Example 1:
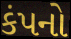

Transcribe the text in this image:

કંપનો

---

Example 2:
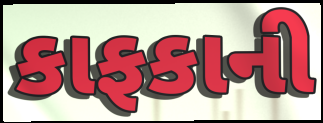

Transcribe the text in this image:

કાફકાની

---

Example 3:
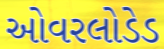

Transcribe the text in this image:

ઓવરલોડેડ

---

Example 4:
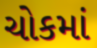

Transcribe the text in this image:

ચોકમાં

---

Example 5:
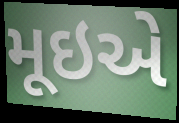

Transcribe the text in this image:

મૂઇએ